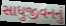
સાધુજીવનનું